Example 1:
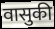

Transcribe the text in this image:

वासुकी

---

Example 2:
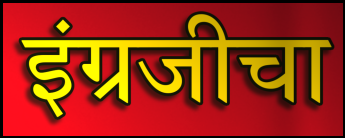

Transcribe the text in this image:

इंग्रजीचा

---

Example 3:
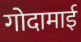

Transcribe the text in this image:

गोदामाई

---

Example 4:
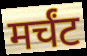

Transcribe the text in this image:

मर्चंट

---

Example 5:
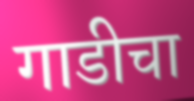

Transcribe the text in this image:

गाडीचा